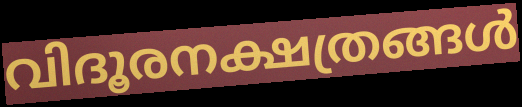
വിദൂരനക്ഷത്രങ്ങൾ